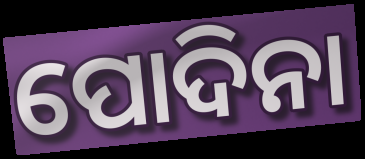
ପୋଦିନା